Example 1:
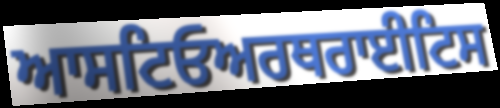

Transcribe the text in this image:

ਆਸਟਿਓਅਰਥਰਾਈਟਿਸ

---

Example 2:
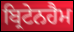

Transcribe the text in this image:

ਬ੍ਰਿਟੇਨਹੈਮ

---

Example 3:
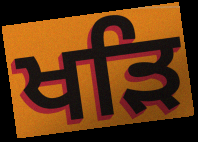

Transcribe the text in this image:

ਖੜਿ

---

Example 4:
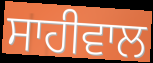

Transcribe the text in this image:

ਸਾਹੀਵਾਲ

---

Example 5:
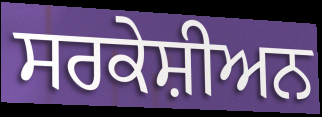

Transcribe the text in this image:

ਸਰਕੇਸ਼ੀਅਨ